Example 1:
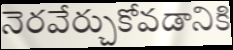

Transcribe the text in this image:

నెరవేర్చుకోవడానికి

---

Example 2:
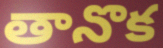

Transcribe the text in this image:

తానొక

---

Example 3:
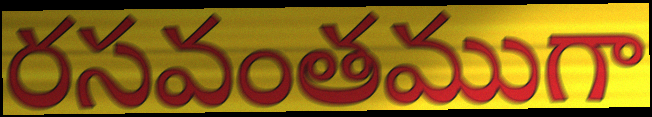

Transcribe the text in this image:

రసవంతముగా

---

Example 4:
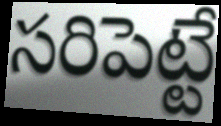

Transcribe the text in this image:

సరిపెట్టే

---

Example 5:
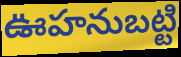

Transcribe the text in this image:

ఊహనుబట్టి